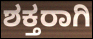
ಶಕ್ತರಾಗಿ